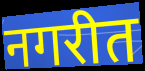
नगरीत